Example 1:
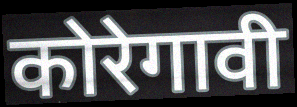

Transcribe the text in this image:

कोरेगावी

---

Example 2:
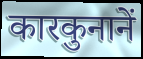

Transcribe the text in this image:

कारकुनानें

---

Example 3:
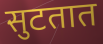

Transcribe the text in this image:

सुटतात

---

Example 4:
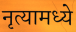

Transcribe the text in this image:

नृत्यामध्ये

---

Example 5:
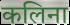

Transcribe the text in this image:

कलिना